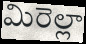
మిరెల్లా